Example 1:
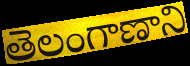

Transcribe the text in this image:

తెలంగాణాని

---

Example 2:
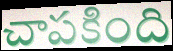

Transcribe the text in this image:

చాపకింది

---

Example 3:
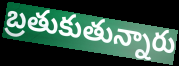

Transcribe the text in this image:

బ్రతుకుతున్నారు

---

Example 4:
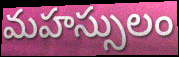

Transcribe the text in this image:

మహస్సులం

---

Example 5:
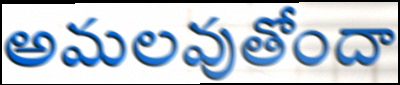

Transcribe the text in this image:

అమలవుతోందా